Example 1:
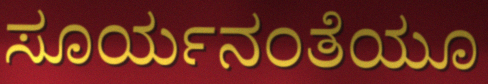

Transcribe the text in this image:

ಸೂರ್ಯನಂತೆಯೂ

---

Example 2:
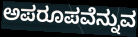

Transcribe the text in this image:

ಅಪರೂಪವೆನ್ನುವ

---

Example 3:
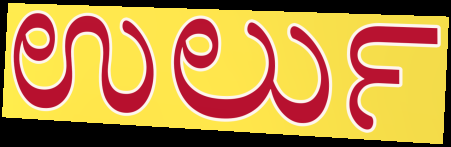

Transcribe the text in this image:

ಉರ್ಲು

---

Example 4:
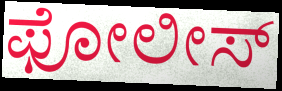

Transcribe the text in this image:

ಫೋಲೀಸ್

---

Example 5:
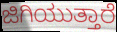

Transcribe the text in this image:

ಜಿಗಿಯುತ್ತಾರೆ